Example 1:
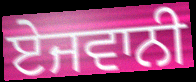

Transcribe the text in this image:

ਏਜਵਾਨੀ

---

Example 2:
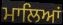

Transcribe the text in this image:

ਮਾਲਿਆਂ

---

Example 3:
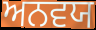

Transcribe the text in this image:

ਅਨਵਯ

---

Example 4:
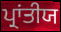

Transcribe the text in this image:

ਪ੍ਰਾਂਤੀਯ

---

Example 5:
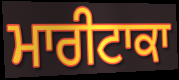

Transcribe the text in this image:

ਮਾਰੀਟਾਕਾ